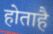
होताहै